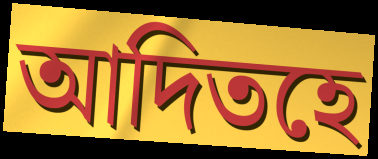
আদিতহে